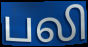
பலி